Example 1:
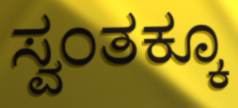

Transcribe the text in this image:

ಸ್ವಂತಕ್ಕೂ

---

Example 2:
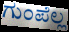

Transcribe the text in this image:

ಗುಂಪೆಲ್ಲ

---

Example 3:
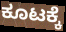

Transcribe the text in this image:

ಕೂಟಕ್ಕೆ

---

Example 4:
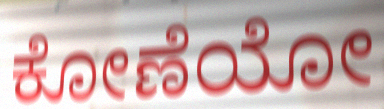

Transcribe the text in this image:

ಕೋಣೆಯೋ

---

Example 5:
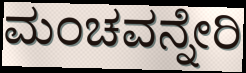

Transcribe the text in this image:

ಮಂಚವನ್ನೇರಿ